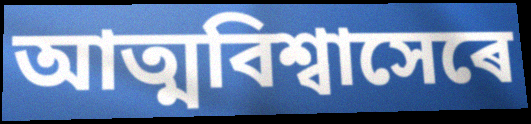
আত্মবিশ্বাসেৰে